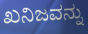
ಖನಿಜವನ್ನು